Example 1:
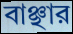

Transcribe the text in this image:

বাঞ্ছার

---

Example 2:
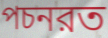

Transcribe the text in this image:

পচনরত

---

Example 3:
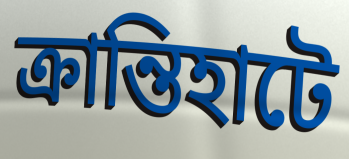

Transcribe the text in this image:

ক্রান্তিহাটে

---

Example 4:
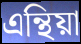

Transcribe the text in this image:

এন্থিয়া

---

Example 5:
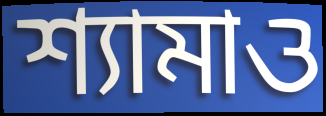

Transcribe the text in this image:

শ্যামাও